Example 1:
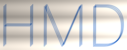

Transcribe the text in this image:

HMD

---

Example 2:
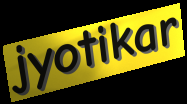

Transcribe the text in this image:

jyotikar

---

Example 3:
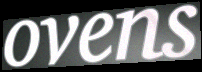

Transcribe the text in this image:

ovens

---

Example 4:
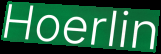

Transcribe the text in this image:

Hoerlin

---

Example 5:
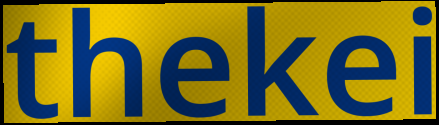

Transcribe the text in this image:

thekei